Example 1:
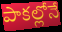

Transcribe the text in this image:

పాకల్లోనే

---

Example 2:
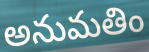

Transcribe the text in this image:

అనుమతిం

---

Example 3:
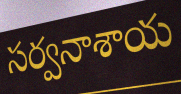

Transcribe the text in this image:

సర్వనాశాయ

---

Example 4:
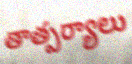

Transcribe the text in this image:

తాత్పర్యాలు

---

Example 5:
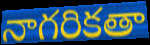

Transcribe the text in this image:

నాగరికతా